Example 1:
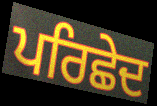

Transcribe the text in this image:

ਪਰਿਛੇਦ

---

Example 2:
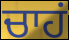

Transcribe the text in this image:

ਚਾਹਂ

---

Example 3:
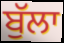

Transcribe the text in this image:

ਬੁੱਲਾ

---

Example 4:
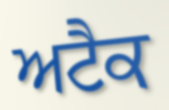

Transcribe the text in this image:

ਅਟੈਕ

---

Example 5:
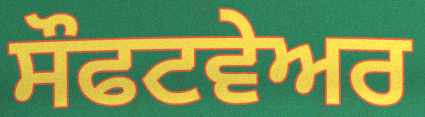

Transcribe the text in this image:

ਸੌਫਟਵੇਅਰ